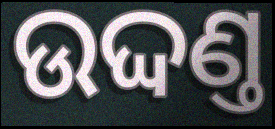
ଉଦ୍ଦଣ୍ତ